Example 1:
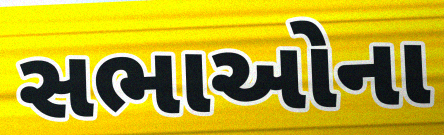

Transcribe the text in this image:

સભાઓના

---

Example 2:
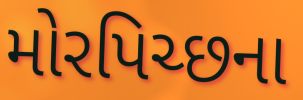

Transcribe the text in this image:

મોરપિચ્છના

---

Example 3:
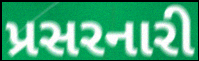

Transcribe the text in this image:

પ્રસરનારી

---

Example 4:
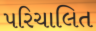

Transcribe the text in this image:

પરિચાલિત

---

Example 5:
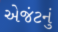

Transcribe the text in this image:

એજંટનું